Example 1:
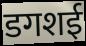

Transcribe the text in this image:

डगशई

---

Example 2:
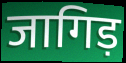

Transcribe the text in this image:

जागिड़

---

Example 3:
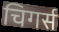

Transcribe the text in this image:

चिगर्स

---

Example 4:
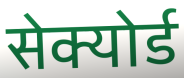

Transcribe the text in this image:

सेक्योर्ड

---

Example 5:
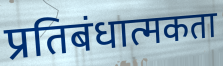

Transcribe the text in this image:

प्रतिबंधात्मकता